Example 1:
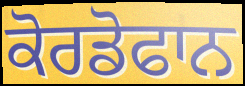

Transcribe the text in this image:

ਕੋਰਡੋਫਾਨ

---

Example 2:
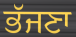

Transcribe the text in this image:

ਭੱਜਣਾ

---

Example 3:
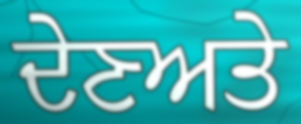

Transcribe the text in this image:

ਦੇਣਅਤੇ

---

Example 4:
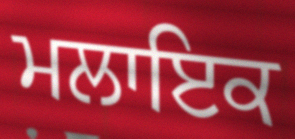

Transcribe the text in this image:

ਮਲਾਇਕ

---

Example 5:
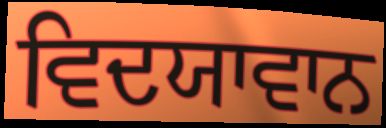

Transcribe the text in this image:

ਵਿਦਯਾਵਾਨ